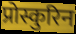
प्रोस्कुरिन